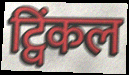
ट्विंकल